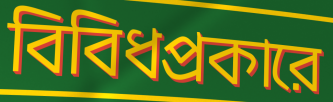
বিবিধপ্রকারে